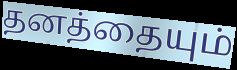
தனத்தையும்